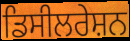
ਡਿਸੀਲਰੇਸ਼ਨ